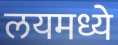
लयमध्ये